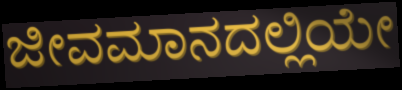
ಜೀವಮಾನದಲ್ಲಿಯೇ